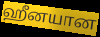
ஹீனயான